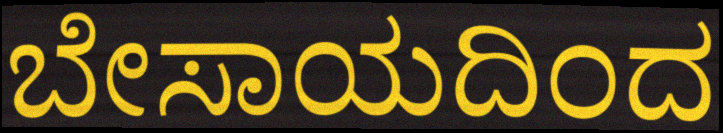
ಬೇಸಾಯದಿಂದ